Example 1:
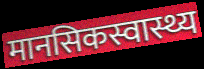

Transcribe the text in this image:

मानसिकस्वास्थ्य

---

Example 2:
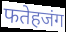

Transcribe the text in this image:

फतेहजंग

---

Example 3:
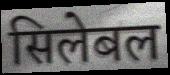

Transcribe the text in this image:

सिलेबल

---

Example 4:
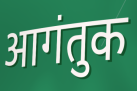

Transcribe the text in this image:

आगंतुक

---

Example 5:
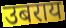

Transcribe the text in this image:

उबराय